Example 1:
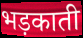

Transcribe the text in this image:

भड़काती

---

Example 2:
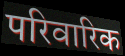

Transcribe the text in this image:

परिवारिक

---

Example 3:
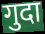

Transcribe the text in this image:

गुदा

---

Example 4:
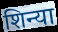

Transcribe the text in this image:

शिन्या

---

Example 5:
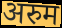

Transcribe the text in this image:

अरुम